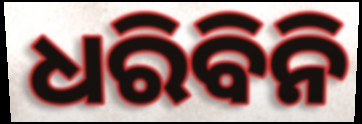
ଧରିବିନି